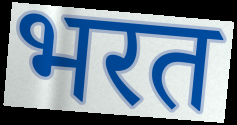
भरत